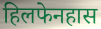
हिलफेनहास